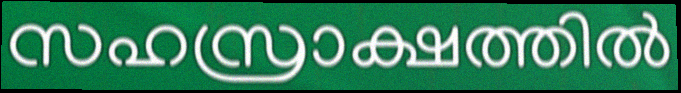
സഹസ്രാക്ഷത്തിൽ